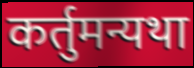
कर्तुमन्यथा